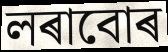
লৰাবোৰ